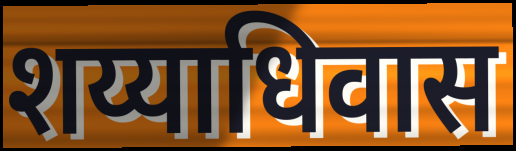
शय्याधिवास